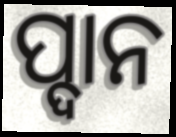
ପ୍ଦାନ